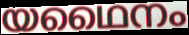
യഥൈനം